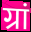
ग्रां